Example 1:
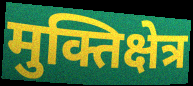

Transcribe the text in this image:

मुक्तिक्षेत्र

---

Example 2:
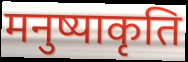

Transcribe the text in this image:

मनुष्याकृति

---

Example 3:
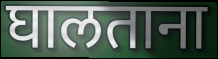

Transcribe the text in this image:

घालताना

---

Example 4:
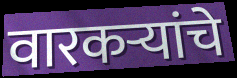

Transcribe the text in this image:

वारकऱ्यांचे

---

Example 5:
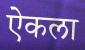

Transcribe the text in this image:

ऐकला